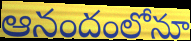
ఆనందంలోనూ